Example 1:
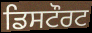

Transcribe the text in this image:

ਡਿਸਟੌਰਟ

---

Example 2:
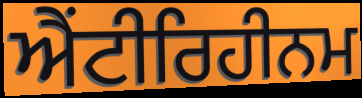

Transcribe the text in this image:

ਐਂਟੀਰਿਹੀਨਮ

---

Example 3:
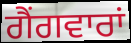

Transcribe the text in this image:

ਗੈਂਗਵਾਰਾਂ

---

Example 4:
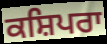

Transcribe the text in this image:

ਕਸ਼ਿਪਰਾ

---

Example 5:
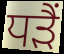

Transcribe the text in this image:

ਧੜੈਂ